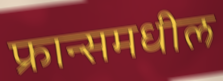
फ्रान्समधील